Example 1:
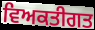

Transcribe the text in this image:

ਵਿਅਕਤੀਗਤ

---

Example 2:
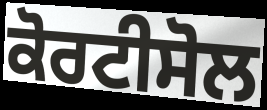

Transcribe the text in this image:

ਕੋਰਟੀਸੋਲ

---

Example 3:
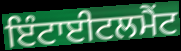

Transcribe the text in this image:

ਇੰਟਾਈਟਲਮੈਂਟ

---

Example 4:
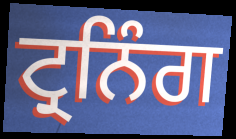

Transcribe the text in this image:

ਟ੍ਰਨਿੰਗ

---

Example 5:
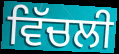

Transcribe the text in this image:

ਵਿੱਚਲੀ